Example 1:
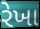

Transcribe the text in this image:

રેખા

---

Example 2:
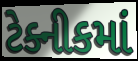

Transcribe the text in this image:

ટેક્નીકમાં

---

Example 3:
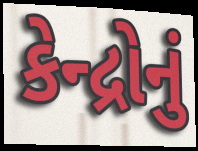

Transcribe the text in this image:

કેન્દ્રોનું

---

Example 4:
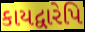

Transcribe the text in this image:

કાયદ્વારેપિ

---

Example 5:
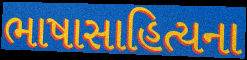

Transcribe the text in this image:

ભાષાસાહિત્યના